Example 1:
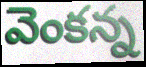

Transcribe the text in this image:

వెంకన్న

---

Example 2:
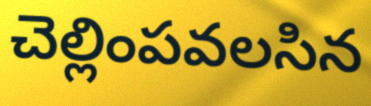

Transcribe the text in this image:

చెల్లింపవలసిన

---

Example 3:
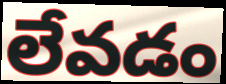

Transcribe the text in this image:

లేవడం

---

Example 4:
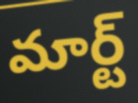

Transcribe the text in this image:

మార్ట్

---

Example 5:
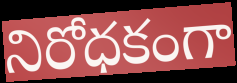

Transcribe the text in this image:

నిరోధకంగా